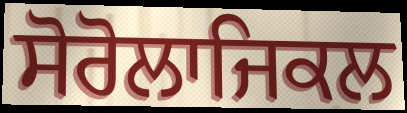
ਸੋਰੋਲਾਜਿਕਲ